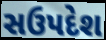
સઉપદેશ